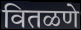
वितळणे